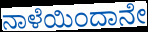
ನಾಳೆಯಿಂದಾನೇ